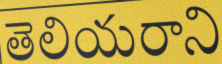
తెలియరాని